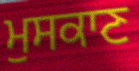
ਮੁਸਕਾਣ